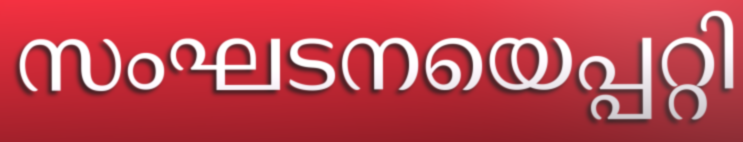
സംഘടനയെപ്പറ്റി